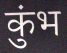
कुंभ